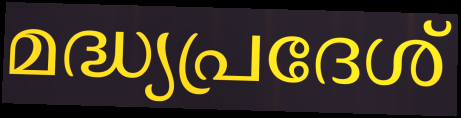
മദ്ധ്യപ്രദേശ്